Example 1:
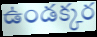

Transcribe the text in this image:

ఉండక్కర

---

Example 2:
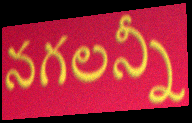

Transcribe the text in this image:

నగలన్నీ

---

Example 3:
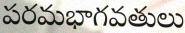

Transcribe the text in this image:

పరమభాగవతులు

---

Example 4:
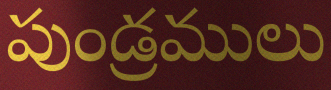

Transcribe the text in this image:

పుండ్రములు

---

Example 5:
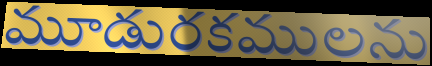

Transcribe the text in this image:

మూడురకములను